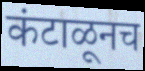
कंटाळूनच